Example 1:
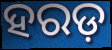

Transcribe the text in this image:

ହରଡ଼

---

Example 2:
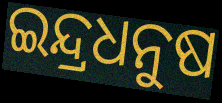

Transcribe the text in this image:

ଇନ୍ଦ୍ରଧନୁଷ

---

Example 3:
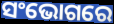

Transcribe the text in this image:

ସଂଭୋଗରେ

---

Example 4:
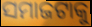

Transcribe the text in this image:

ସମାଜଟାକୁ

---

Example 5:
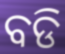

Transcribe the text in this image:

ବଡି